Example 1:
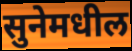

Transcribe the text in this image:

सुनेमधील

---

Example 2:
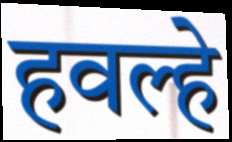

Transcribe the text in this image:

हवल्हे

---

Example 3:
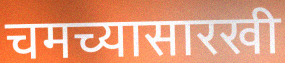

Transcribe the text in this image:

चमच्यासारखी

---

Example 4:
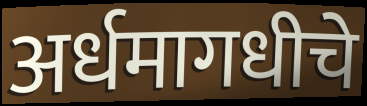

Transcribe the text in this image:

अर्धमागधीचे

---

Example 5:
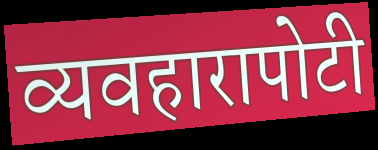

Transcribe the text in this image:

व्यवहारापोटी